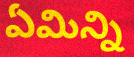
ఏమిన్ని